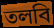
তলবি